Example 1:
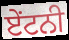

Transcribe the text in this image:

ਏਂਟਨੀ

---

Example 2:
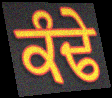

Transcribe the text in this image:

ਕੰਢੇ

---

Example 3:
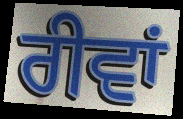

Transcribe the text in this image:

ਰੀਵਾਂ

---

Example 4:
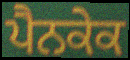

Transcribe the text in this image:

ਪੈਨਕੇਕ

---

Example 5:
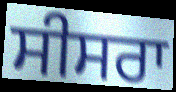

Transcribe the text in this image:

ਸੀਸਰਾ